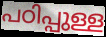
പഠിപ്പുള്ള